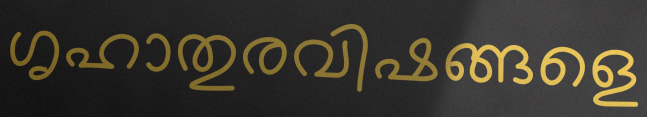
ഗൃഹാതുരവിഷങ്ങളെ